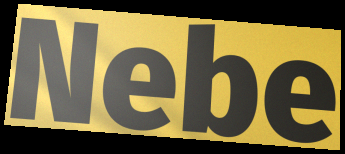
Nebe